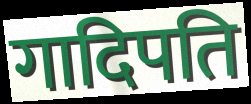
गादिपति